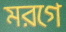
মরগে